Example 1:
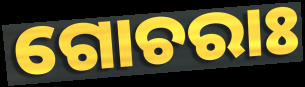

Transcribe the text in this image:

ଗୋଚରାଃ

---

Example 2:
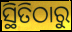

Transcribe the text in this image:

ସ୍ଥିତିଠାରୁ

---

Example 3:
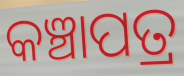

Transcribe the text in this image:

କଞ୍ଚାପତ୍ର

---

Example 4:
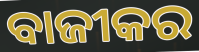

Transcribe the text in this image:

ବାଜୀକର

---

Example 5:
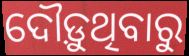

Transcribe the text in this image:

ଦୌଡ଼ୁଥିବାରୁ